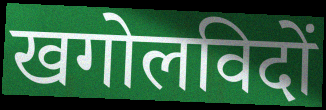
खगोलविदों